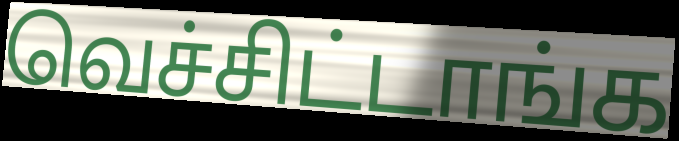
வெச்சிட்டாங்க